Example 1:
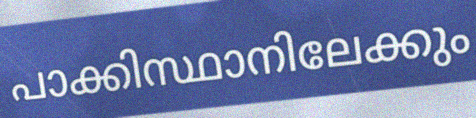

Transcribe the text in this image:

പാക്കിസ്ഥാനിലേക്കും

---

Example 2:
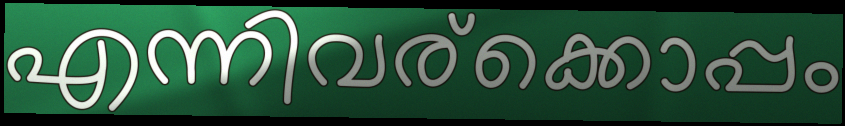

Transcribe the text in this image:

എന്നിവര്ക്കൊപ്പം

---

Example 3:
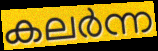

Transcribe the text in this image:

കലർന്ന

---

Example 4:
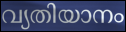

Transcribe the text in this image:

വ്യതിയാനം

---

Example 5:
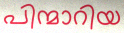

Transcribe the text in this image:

പിന്മാറിയ